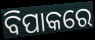
ବିପାକରେ